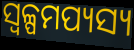
ସ୍ୱଳ୍ପମପ୍ୟସ୍ୟ